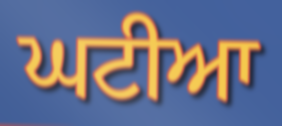
ਘਟੀਆ